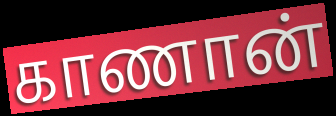
காணான்